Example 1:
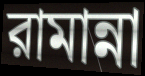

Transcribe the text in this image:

রামান্না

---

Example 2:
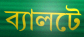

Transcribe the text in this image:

ব্যালটে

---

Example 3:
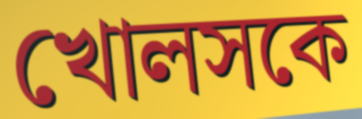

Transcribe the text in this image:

খোলসকে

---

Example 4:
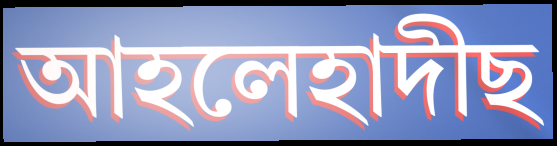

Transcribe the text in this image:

আহলেহাদীছ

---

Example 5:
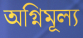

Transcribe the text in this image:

অগ্নিমূল্য